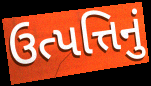
ઉત્પત્તિનું